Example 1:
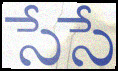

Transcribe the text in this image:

సేసే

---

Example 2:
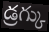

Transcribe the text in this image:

డ్రగ్కు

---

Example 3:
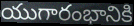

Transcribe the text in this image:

యుగారంభానికి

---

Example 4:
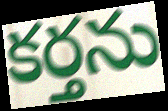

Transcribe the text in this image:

కర్తను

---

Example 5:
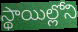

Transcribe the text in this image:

స్థాయిల్లోని